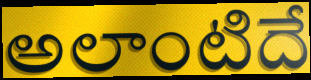
అలాంటిదే